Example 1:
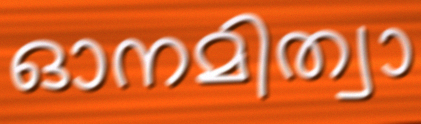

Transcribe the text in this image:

ഓനമിത്വാ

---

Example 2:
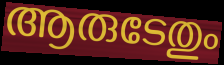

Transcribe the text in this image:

ആരുടേതും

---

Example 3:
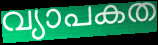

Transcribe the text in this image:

വ്യാപകത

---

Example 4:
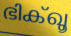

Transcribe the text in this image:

ഭിക്ഖൂ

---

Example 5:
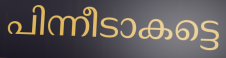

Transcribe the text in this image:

പിന്നീടാകട്ടെ